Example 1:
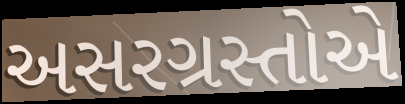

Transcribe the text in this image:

અસરગ્રસ્તોએ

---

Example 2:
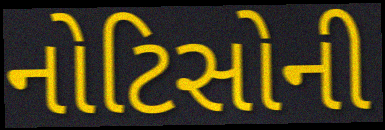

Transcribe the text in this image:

નોટિસોની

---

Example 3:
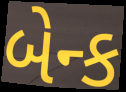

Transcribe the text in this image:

બેન્ક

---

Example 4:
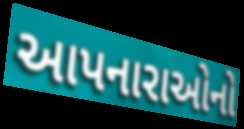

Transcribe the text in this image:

આપનારાઓનો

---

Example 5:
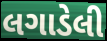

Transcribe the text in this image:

લગાડેલી